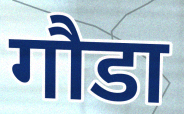
गौडा